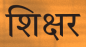
शिक्षर